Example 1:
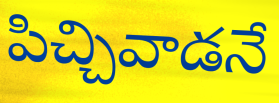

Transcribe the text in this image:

పిచ్చివాడనే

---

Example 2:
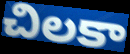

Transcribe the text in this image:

చిలకా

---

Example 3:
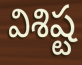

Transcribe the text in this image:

విశిష్ట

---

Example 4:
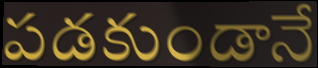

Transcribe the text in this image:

పడకుండానే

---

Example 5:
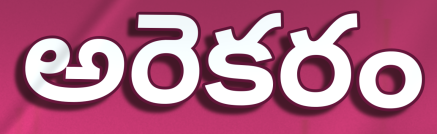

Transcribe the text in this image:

అరెకరం